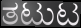
ತಟುಟ